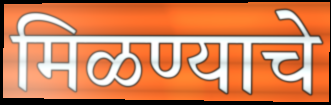
मिळण्याचे